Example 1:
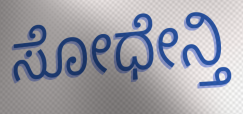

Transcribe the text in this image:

ಸೋಧೇನ್ತಿ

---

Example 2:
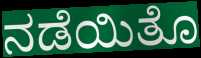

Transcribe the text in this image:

ನಡೆಯಿತೊ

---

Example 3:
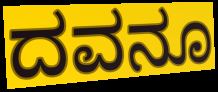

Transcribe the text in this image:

ದವನೂ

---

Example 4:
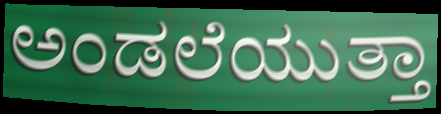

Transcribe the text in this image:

ಅಂಡಲೆಯುತ್ತಾ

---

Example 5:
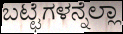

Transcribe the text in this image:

ಬಟ್ಟೆಗಳನ್ನೆಲ್ಲಾ